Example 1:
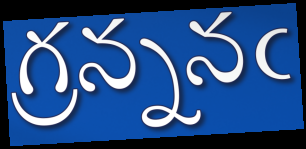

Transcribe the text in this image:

గ్రన్ననఁ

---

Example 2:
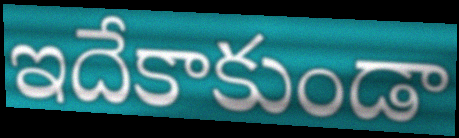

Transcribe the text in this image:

ఇదేకాకుండా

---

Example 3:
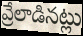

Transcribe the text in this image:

వ్రేలాడినట్లు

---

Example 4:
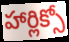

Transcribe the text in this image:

హార్లిక్సో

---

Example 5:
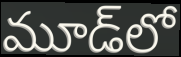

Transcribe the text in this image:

మూడ్‌లో